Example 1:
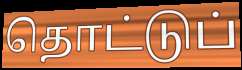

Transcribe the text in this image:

தொட்டுப்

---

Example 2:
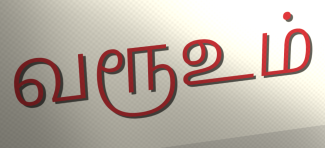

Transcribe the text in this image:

வரூஉம்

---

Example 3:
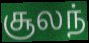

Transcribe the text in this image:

சூலந்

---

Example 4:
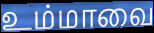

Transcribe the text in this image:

உம்மாவை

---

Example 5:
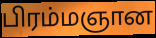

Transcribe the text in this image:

பிரம்மஞான